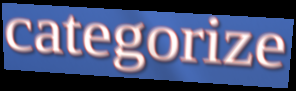
categorize